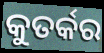
କୁତର୍କର